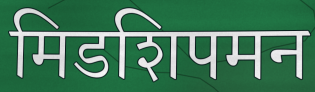
मिडशिपमन